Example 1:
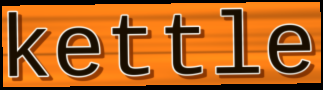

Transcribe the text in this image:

kettle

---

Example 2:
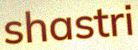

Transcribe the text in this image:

shastri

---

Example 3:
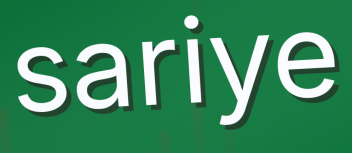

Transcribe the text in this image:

sariye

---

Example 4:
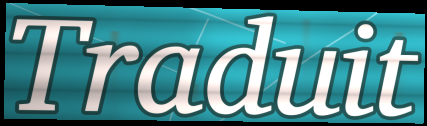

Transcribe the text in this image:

Traduit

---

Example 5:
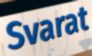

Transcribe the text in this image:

Svarat